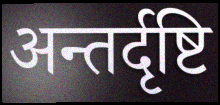
अन्तर्दृष्टि